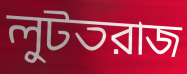
লুটতরাজ